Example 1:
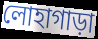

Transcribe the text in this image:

লোহাগাড়া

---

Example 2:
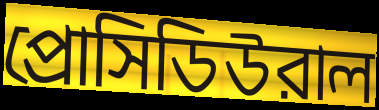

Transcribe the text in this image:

প্রোসিডিউরাল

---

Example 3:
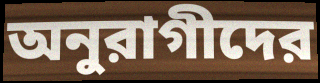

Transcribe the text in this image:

অনুরাগীদের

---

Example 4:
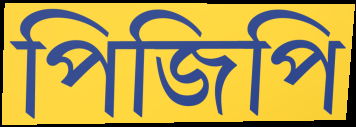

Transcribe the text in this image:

পিজিপি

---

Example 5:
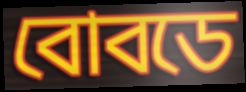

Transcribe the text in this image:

বোবডে